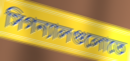
সিগন্যালগুলোতে